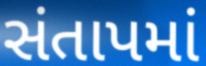
સંતાપમાં